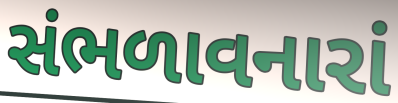
સંભળાવનારાં